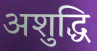
अशुद्धि